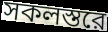
সকলস্তরে